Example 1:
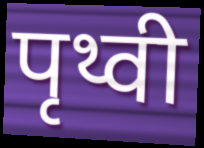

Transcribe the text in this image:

पृथ्‍वी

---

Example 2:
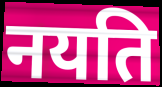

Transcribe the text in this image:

नयति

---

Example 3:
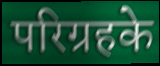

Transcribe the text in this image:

परिग्रहके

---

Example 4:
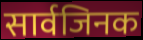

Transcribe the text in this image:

सार्वजिनक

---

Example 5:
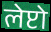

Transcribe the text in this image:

लेप्टो